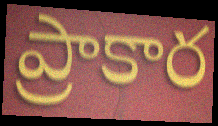
ప్రాకార